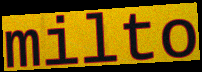
milto